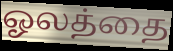
ஓலத்தை